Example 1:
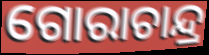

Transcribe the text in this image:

ଗୋରାଚାନ୍ଦ୍ର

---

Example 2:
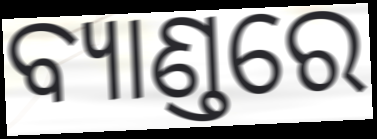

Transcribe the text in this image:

ବ୍ୟାଣ୍ଡରେ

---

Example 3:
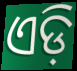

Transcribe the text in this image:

ଏଡ଼ି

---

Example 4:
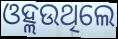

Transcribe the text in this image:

ଓହ୍ଲଉଥିଲେ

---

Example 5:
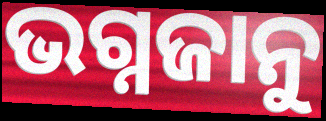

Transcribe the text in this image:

ଭଗ୍ନଜାନୁ